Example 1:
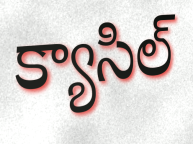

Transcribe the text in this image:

క్యాసిల్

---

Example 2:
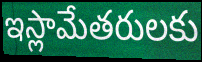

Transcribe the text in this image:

ఇస్లామేతరులకు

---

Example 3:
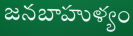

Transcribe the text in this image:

జనబాహుళ్యం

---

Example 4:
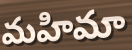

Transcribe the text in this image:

మహిమా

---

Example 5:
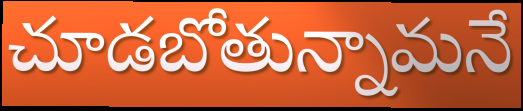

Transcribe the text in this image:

చూడబోతున్నామనే